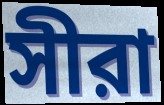
সীরা